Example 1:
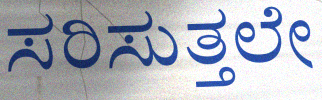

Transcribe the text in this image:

ಸರಿಸುತ್ತಲೇ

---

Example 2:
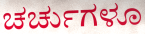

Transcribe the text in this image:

ಚರ್ಚುಗಳೂ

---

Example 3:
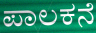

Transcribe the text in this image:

ಪಾಲಕನೆ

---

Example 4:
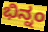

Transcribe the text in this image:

ಭಿನ್ನಂ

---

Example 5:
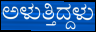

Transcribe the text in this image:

ಅಳುತ್ತಿದ್ದಳು